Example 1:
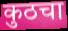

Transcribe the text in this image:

कुठचा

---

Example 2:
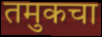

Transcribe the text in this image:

तमुकचा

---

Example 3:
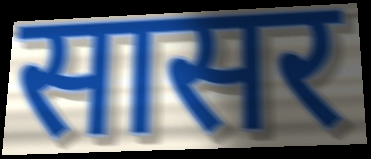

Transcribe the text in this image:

सासर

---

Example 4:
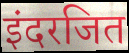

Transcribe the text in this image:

इंदरजित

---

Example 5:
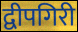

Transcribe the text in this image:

द्वीपगिरी